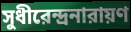
সুধীরেন্দ্রনারায়ণ